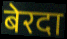
बेरदा